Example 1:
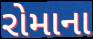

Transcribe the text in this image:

રોમાના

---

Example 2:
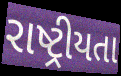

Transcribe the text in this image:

રાષ્ટ્રીયતા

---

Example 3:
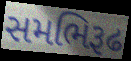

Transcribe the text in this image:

સમભિરૂઢ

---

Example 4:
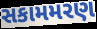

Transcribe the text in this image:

સકામમરણ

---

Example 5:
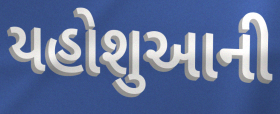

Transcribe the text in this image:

યહોશુઆની